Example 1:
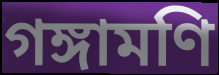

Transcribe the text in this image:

গঙ্গামণি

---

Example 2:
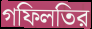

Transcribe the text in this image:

গফিলতির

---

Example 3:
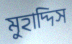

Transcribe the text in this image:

মুহাদ্দিস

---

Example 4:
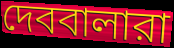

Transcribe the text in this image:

দেববালারা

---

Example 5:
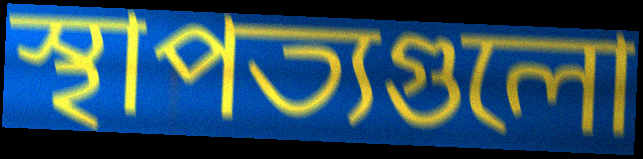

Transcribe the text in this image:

স্থাপত্যগুলো